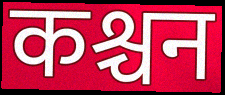
कश्चन